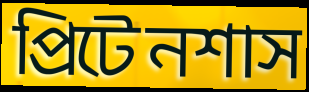
প্রিটেনশাস